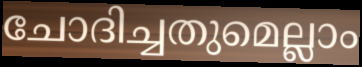
ചോദിച്ചതുമെല്ലാം